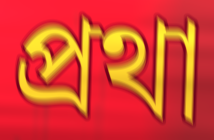
প্ৰথা